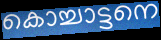
കൊച്ചാട്ടനെ